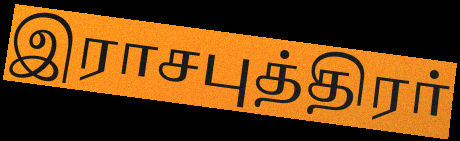
இராசபுத்திரர்